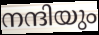
നന്ദിയും